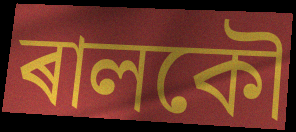
ৰালকৌ